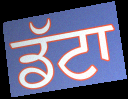
ਡੱਟਾ